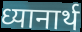
ध्यानार्थ